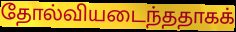
தோல்வியடைந்ததாகக்